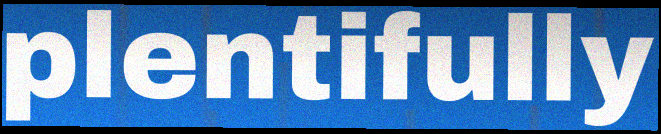
plentifully